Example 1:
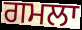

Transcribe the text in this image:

ਗਮਲਾ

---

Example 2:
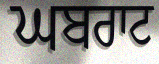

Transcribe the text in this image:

ਘਬਰਾਟ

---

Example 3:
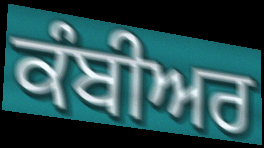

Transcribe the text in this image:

ਕੰਬੀਅਰ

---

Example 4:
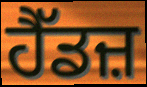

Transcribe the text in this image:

ਹੈੱਡਜ਼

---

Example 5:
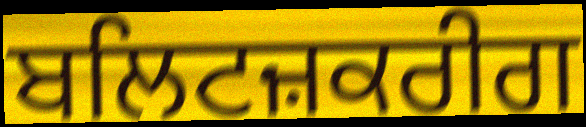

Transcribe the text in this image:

ਬਲਿਟਜ਼ਕਰੀਗ